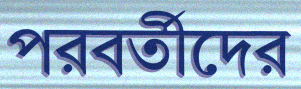
পরবর্তীদের